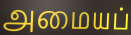
அமையப்